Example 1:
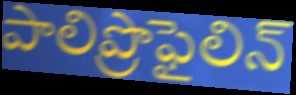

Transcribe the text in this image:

పాలిప్రొఫైలిన్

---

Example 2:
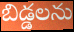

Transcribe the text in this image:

బిడ్డలను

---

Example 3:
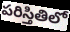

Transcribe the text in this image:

పరిస్తితిలో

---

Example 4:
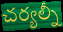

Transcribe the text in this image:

చర్యల్నీ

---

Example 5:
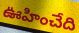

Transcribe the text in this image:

ఊహించేది